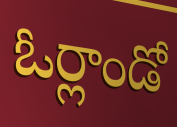
ఓర్లాండో